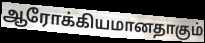
ஆரோக்கியமானதாகும்